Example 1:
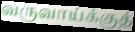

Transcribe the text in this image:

வருவாய்க்குத்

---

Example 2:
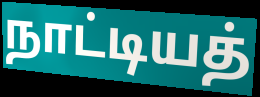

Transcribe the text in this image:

நாட்டியத்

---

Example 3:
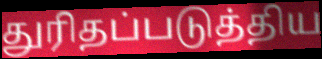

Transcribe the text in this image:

துரிதப்படுத்திய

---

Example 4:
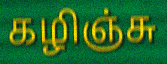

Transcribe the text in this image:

கழிஞ்சு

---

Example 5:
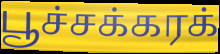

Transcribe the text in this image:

பூச்சக்கரக்